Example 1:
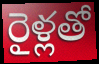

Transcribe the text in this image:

రైళ్లతో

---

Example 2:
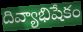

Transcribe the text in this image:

దివ్యాభిషేకం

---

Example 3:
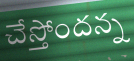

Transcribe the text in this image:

చేస్తోందన్న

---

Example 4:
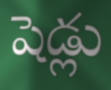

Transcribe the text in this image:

షెడ్లు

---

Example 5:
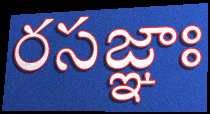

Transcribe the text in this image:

రసజ్ఞాః